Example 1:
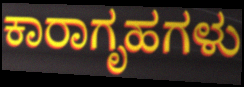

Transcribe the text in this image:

ಕಾರಾಗೃಹಗಳು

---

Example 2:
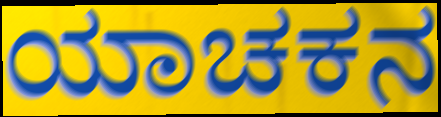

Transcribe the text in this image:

ಯಾಚಕನ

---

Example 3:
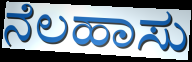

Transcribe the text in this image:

ನೆಲಹಾಸು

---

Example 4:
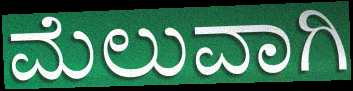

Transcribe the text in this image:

ಮೆಲುವಾಗಿ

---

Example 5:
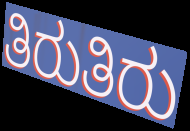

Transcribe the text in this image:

ತಿರುತಿರು